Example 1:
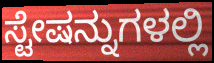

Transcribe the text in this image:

ಸ್ಟೇಷನ್ನುಗಳಲ್ಲಿ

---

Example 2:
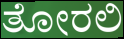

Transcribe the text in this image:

ತೋರಲಿ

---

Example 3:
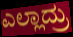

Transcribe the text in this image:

ಎಲ್ಲಾದ್ರು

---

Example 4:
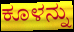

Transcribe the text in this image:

ಕೂಳನ್ನು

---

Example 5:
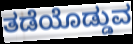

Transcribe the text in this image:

ತಡೆಯೊಡ್ಡುವ